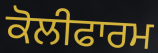
ਕੋਲੀਫਾਰਮ